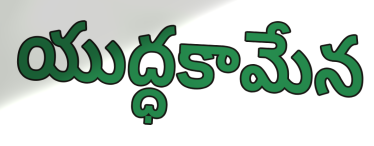
యుద్ధకామేన